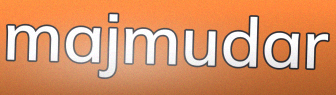
majmudar